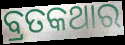
ବ୍ରତକଥାର